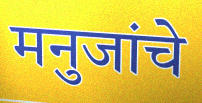
मनुजांचे